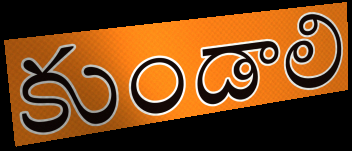
కుండాలి